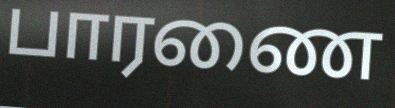
பாரணை